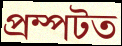
প্ৰম্পটত